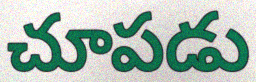
చూపడు